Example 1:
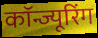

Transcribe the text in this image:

कॉन्ज्यूरिंग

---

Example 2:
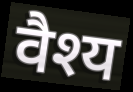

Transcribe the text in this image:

वैश्य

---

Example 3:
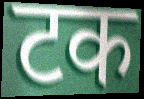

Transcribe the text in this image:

टक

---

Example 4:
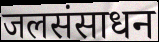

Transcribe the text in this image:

जलसंसाधन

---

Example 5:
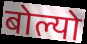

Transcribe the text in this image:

बोल्यो